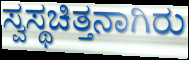
ಸ್ವಸ್ಥಚಿತ್ತನಾಗಿರು